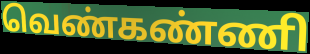
வெண்கண்ணி